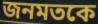
জনমতকে